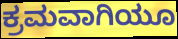
ಕ್ರಮವಾಗಿಯೂ